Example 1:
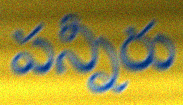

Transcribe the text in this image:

పన్నీరు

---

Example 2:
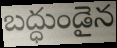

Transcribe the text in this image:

బద్ధుండైన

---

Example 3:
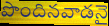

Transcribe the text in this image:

పొందినవాడనై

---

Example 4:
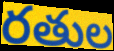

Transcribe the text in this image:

రతుల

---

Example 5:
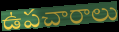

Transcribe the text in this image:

ఉపచారాలు